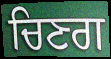
ਚਿਣਗ